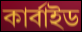
কার্বাইড